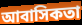
আবাসিকতা